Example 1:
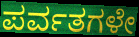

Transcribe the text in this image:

ಪರ್ವತಗಳೇ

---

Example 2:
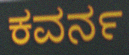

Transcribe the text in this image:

ಕವರ್ನ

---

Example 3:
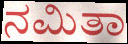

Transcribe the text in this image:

ನಮಿತಾ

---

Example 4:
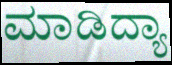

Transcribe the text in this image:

ಮಾಡಿದ್ಯಾ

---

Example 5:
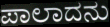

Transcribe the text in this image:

ಪಾಲಾದನು